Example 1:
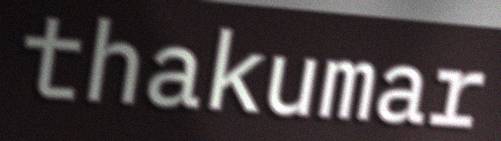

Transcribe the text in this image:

thakumar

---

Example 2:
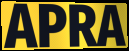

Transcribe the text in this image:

APRA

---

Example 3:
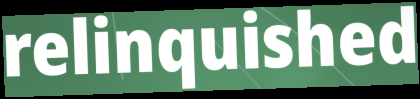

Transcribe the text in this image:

relinquished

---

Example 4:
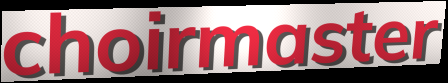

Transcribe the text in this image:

choirmaster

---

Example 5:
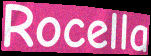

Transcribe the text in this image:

Rocella